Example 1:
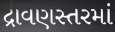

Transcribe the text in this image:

દ્રાવણસ્તરમાં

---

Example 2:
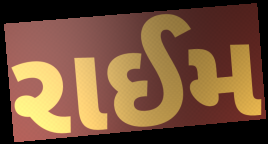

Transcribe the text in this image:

રાઈમ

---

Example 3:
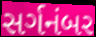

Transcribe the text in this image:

સર્ગનંબર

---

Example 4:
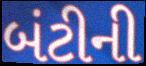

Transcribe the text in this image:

બંટીની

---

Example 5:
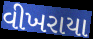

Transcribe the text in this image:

વીખરાયા